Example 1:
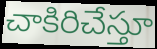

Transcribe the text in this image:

చాకిరిచేస్తూ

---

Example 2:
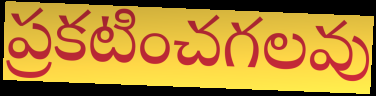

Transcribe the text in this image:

ప్రకటించగలవు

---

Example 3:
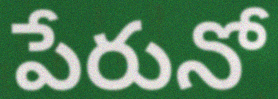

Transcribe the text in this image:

పేరునో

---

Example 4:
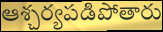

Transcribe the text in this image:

ఆశ్చర్యపడిపోతారు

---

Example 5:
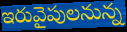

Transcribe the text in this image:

ఇరువైపులనున్న